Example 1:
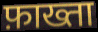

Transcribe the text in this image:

फ़ाख्ता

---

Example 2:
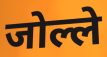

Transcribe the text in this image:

जोल्ले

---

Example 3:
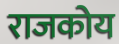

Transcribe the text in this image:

राजकोय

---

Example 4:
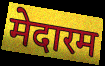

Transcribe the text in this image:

मेदारम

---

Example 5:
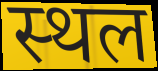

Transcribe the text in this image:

स्थल